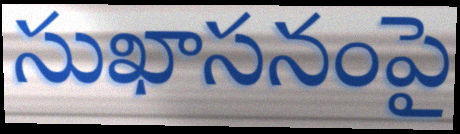
సుఖాసనంపై